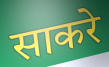
साकरे